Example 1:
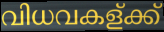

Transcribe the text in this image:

വിധവകള്ക്ക്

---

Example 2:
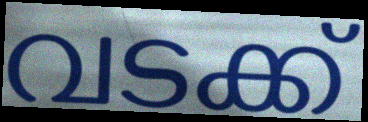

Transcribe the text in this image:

വടക്ക്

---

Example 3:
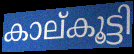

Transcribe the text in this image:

കാല്കൂട്ടി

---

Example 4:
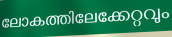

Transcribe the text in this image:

ലോകത്തിലേക്കേറ്റവും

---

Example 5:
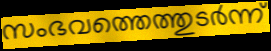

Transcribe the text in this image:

സംഭവത്തെത്തുടർന്ന്